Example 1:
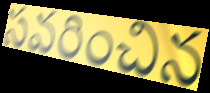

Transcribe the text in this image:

సవరించిన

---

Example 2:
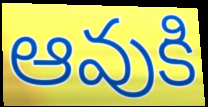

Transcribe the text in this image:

ఆవుకి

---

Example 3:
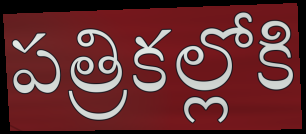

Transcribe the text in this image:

పత్రికల్లోకి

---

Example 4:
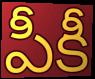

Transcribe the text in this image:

పీకీ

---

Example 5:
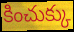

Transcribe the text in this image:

కించుక్కు